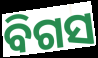
ବିଗସ